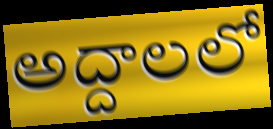
అద్దాలలో